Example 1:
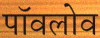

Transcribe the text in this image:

पॉवलोव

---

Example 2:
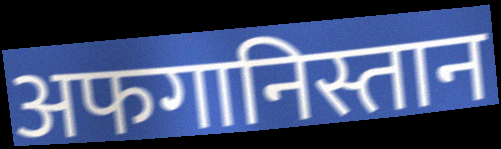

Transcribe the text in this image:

अफगानिस्तान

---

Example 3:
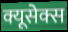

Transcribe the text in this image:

क्यूसेक्स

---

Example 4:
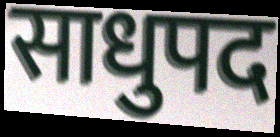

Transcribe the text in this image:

साधुपद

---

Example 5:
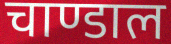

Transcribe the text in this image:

चाण्डाल